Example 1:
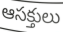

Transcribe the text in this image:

ఆసక్తులు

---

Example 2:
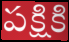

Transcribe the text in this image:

పక్షికి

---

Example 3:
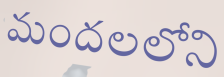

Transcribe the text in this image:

మందలలోని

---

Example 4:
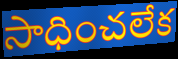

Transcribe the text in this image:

సాధించలేక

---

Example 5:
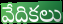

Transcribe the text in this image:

వేదికలు